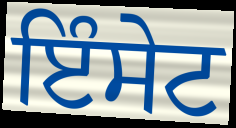
ਇੰਸੇਟ